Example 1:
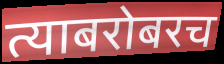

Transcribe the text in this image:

त्याबरोबरच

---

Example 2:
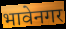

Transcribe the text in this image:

भावेनगर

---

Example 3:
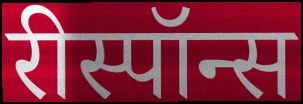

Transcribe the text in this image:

रीस्पॉन्स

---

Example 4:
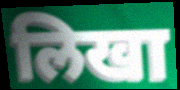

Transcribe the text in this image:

लिखा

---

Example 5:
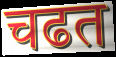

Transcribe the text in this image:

चढत